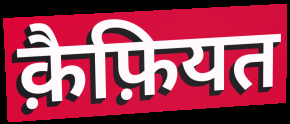
क़ैफ़ियत